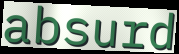
absurd